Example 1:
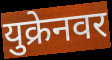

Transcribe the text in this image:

युक्रेनवर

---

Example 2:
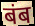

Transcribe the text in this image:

बंब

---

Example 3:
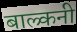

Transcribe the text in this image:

बाल्कनी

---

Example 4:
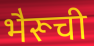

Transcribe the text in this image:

भैरूची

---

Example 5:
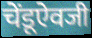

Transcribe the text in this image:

चेंडूऐवजी